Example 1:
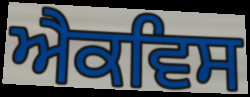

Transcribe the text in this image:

ਐਕਵਿਸ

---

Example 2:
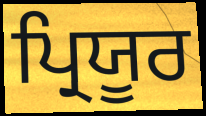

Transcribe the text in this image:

ਪ੍ਰਿਯੂਰ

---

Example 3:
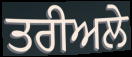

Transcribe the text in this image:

ਤਰੀਅਲੇ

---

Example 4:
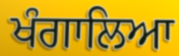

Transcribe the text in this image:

ਖੰਗਾਲਿਆ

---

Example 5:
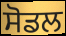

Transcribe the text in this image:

ਸੋਡਲ